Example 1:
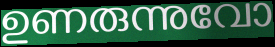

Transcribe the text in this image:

ഉണരുന്നുവോ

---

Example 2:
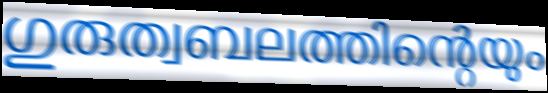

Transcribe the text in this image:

ഗുരുത്വബലത്തിന്റെയും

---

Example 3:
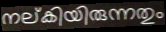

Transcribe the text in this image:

നല്കിയിരുന്നതും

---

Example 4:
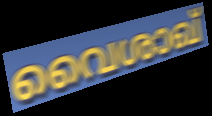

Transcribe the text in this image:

വൈശാഖ്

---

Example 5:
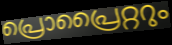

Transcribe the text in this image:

പ്രൊപ്രൈറ്ററും